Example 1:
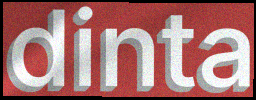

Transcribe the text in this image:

dinta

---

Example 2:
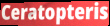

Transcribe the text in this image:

Ceratopteris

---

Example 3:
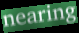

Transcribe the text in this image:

nearing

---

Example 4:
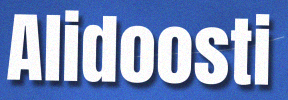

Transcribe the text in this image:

Alidoosti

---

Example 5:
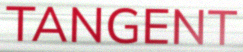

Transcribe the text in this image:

TANGENT